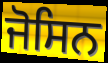
ਜੋਸਿਨ